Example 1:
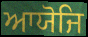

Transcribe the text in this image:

ਆਯੋਜਿ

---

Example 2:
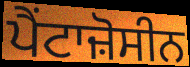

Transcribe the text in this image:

ਪੈਂਟਾਜ਼ੋਸੀਨ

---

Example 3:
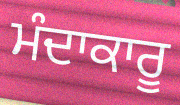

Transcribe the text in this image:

ਮੰਦਾਕਾਰੂ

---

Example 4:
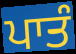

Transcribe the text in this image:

ਪਾਤੰ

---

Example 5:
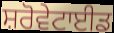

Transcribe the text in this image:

ਸ਼ਰੋਵੇਟਾਈਡ